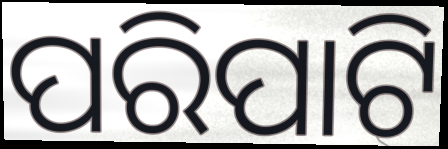
ପରିପାଟି